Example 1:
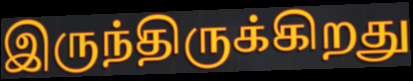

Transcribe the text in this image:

இருந்திருக்கிறது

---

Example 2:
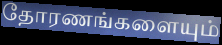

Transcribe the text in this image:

தோரணங்களையும்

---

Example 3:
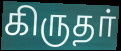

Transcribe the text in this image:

கிருதர்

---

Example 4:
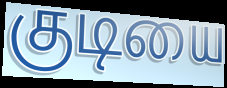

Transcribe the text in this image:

குடியை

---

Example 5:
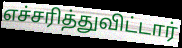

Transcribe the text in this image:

எச்சரித்துவிட்டார்